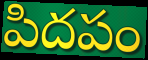
పిదపం